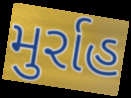
મુર્રાહ